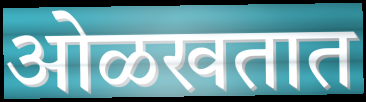
ओळखतात